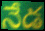
నేడ